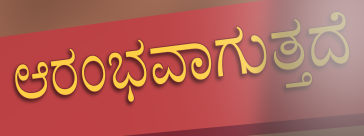
ಆರಂಭವಾಗುತ್ತದೆ